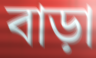
বাড়া